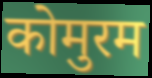
कोमुरम